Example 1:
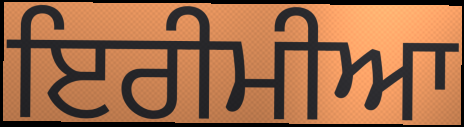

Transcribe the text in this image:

ਇਰੀਮੀਆ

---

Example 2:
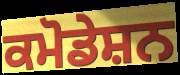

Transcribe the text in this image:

ਕਮੋਡੇਸ਼ਨ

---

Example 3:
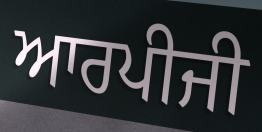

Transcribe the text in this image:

ਆਰਪੀਜੀ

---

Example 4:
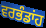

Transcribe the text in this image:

ਵਰਭੰਡਾਂਹ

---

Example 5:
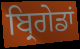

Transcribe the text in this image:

ਬ੍ਰਿਗੇਡਾਂ